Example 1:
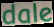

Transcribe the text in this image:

dale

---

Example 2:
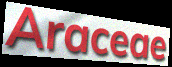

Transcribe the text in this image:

Araceae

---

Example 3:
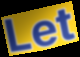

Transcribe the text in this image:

Let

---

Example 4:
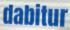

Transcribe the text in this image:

dabitur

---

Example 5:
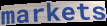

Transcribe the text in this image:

markets